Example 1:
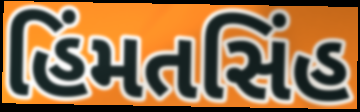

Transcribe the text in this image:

હિંમતસિંહ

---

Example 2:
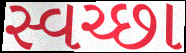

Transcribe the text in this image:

સ્વચ્છા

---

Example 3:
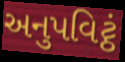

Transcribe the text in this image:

અનુપવિટ્ઠં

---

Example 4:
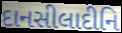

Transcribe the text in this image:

દાનસીલાદીનિ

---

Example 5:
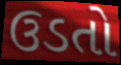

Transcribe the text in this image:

ઉડતો